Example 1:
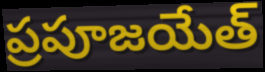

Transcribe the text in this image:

ప్రపూజయేత్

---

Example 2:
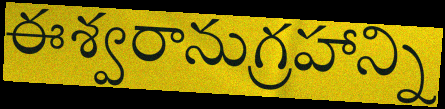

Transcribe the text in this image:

ఈశ్వరానుగ్రహాన్ని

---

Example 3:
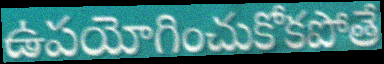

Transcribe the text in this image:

ఉపయోగించుకోకపోతే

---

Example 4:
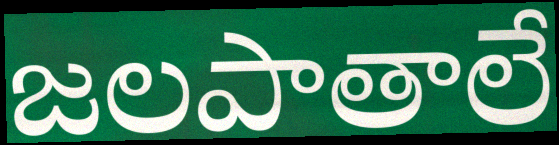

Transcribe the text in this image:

జలపాతాలే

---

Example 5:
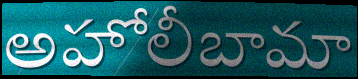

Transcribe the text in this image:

అహోలీబామా